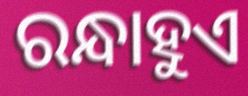
ରନ୍ଧାହୁଏ